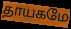
தாயகமே